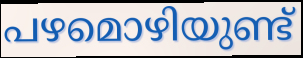
പഴമൊഴിയുണ്ട്